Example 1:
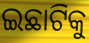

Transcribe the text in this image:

ଇଛାଟିକୁ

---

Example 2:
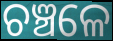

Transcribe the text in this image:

ଚଞ୍ଚଳେ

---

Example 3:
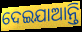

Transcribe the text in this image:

ଦେଇଯାଆନ୍ତି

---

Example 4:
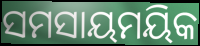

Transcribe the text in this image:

ସମସାୟମୟିକ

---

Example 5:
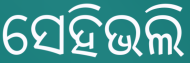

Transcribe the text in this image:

ସେହିଭଲି